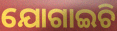
ଯୋଗାଇଚି